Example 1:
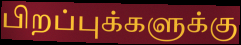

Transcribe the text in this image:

பிறப்புக்களுக்கு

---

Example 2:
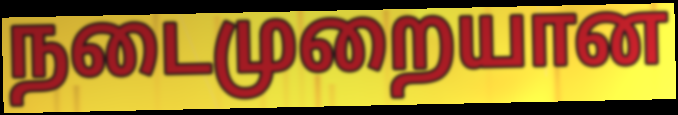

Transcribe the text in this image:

நடைமுறையான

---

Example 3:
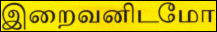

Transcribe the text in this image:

இறைவனிடமோ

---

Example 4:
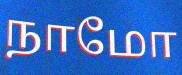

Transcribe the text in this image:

நாமோ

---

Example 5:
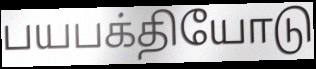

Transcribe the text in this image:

பயபக்தியோடு